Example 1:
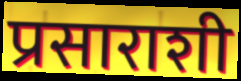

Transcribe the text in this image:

प्रसाराशी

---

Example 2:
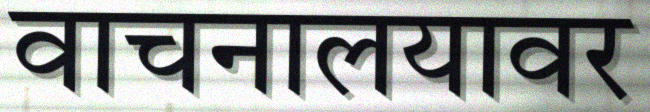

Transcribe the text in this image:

वाचनालयावर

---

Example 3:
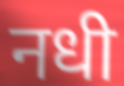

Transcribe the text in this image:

नधी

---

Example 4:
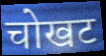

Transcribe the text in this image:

चोखट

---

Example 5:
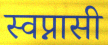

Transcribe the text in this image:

स्वप्नासी